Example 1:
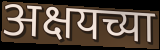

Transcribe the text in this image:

अक्षयच्या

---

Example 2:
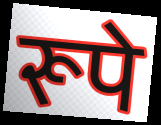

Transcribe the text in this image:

रूपे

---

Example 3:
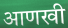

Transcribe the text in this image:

आणखी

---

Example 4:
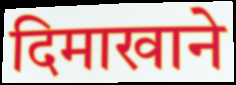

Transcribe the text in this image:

दिमाखाने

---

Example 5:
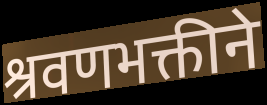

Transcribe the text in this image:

श्रवणभक्तीने